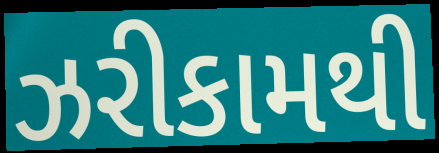
ઝરીકામથી